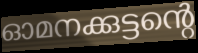
ഓമനക്കുട്ടന്റെ